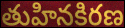
తుహినకిరణ